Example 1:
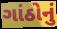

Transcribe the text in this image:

ગાંઠોનું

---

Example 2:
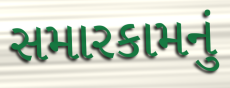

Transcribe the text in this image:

સમારકામનું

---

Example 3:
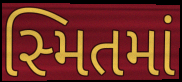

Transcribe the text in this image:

સ્મિતમાં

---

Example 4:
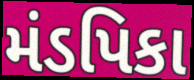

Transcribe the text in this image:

મંડપિકા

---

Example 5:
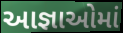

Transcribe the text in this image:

આજ્ઞાઓમાં